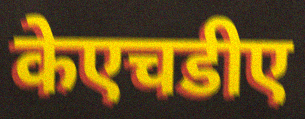
केएचडीए